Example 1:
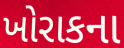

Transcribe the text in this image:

ખોરાકના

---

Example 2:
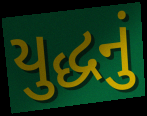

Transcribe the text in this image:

યુદ્ધનું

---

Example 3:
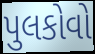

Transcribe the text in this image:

પુલકોવો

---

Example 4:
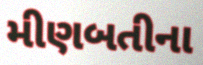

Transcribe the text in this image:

મીણબતીના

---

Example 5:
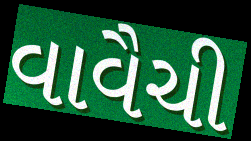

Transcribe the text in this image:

વાવૈચી